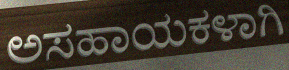
ಅಸಹಾಯಕಳಾಗಿ